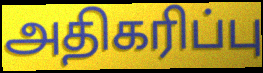
அதிகரிப்பு